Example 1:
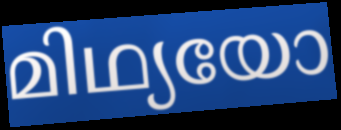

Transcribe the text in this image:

മിഥ്യയോ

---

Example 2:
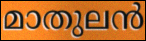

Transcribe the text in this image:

മാതുലൻ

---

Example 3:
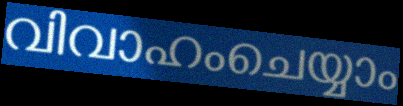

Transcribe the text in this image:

വിവാഹംചെയ്യാം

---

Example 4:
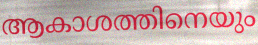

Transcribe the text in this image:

ആകാശത്തിനെയും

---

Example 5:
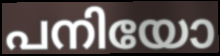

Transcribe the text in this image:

പനിയോ